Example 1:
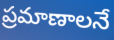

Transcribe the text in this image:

ప్రమాణాలనే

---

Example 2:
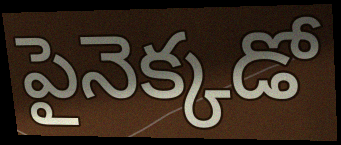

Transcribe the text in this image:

పైనెక్కడో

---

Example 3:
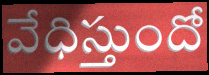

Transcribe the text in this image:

వేధిస్తుందో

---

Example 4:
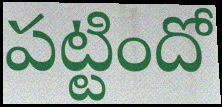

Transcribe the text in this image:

పట్టిందో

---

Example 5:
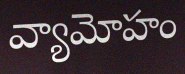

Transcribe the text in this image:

వ్యామోహం